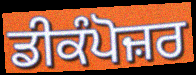
ਡੀਕੰਪੋਜ਼ਰ